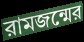
রামজন্মের